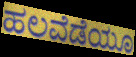
ಹಲವೆಡೆಯೂ